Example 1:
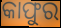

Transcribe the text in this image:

କାଫୁର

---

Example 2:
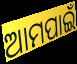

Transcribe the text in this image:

ଆମପାଇଁ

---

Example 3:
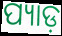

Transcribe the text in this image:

ପ୍ୟାଡ଼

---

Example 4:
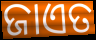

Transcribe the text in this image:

ଜାଏତ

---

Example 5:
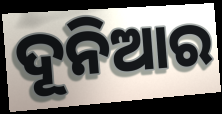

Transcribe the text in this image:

ଦୂନିଆର